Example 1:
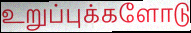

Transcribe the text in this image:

உறுப்புக்களோடு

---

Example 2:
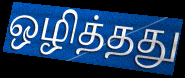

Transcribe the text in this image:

ஒழித்தது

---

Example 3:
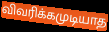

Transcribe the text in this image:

விவரிக்கமுடியாத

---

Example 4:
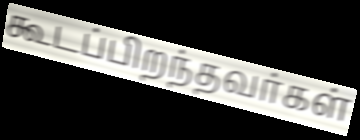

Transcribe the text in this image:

கூடப்பிறந்தவர்கள்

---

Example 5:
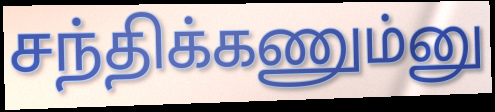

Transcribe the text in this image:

சந்திக்கணும்னு